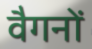
वैगनों